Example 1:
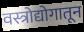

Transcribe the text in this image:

वस्त्रोद्योगातून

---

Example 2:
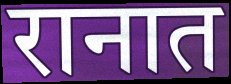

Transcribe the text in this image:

रानात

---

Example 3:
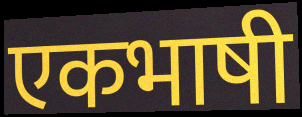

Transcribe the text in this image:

एकभाषी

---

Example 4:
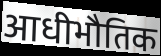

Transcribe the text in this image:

आधीभौतिक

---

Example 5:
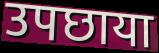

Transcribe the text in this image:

उपछाया